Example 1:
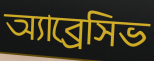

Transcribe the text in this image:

অ্যাব্রেসিভ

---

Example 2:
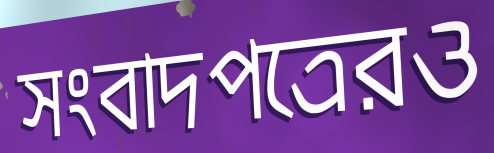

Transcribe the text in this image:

সংবাদপত্রেরও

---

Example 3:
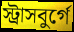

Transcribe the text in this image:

স্ট্রাসবুর্গে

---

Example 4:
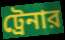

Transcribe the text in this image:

ট্রেনার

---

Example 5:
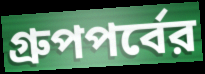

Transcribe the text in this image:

গ্রুপপর্বের